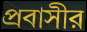
প্রবাসীর